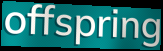
offspring